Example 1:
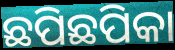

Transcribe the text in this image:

ଛପିଛପିକା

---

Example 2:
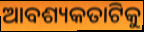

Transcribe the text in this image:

ଆବଶ୍ୟକତାଟିକୁ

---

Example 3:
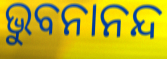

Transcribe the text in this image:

ଭୁବନାନନ୍ଦ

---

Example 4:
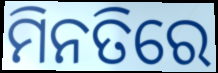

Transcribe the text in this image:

ମିନତିରେ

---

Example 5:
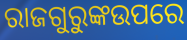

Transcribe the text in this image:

ରାଜଗୁରୁଙ୍କଉପରେ